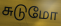
சுடுமோ